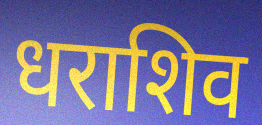
धराशिव